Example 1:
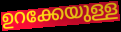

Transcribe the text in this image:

ഉറക്കേയുള്ള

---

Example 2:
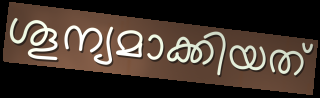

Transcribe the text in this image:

ശൂന്യമാക്കിയത്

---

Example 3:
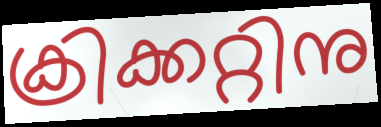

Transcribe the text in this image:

ക്രിക്കറ്റിനു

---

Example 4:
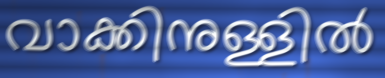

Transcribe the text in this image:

വാക്കിനുള്ളിൽ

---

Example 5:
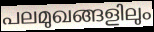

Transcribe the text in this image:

പലമുഖങ്ങളിലും